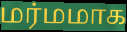
மர்மமாக